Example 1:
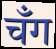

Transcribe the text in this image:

चँग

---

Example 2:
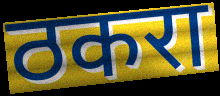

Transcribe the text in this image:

ठकरा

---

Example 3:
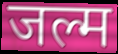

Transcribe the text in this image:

जल्म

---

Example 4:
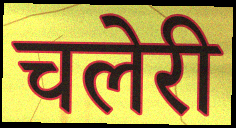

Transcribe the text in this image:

चलेरी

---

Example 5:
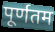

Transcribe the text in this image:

पूर्णतम